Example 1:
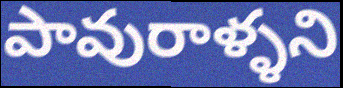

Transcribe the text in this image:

పావురాళ్ళని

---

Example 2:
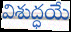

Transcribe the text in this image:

విశుద్ధయే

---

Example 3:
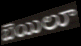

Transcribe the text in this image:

బెయిలూ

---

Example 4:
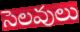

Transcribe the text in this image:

సెలవులు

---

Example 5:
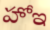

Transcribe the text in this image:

హోఇ